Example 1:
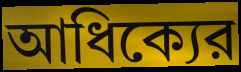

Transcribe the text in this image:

আধিক্যের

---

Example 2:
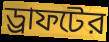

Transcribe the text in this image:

ড্রাফটের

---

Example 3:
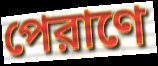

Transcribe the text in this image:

পেরাণে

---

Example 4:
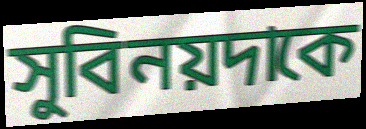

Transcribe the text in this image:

সুবিনয়দাকে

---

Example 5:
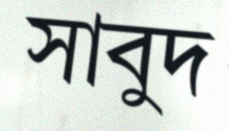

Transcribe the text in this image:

সাবুদ